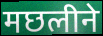
मछलीने